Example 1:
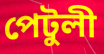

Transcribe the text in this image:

পেটুলী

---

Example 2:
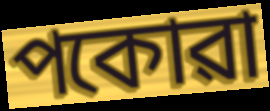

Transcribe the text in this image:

পকোৱা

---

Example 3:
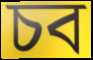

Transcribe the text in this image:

চব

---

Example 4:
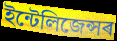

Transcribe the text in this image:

ইন্টেলিজেন্সৰ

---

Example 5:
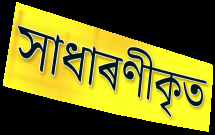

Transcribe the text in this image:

সাধাৰণীকৃত